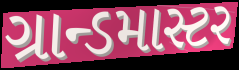
ગ્રાન્ડમાસ્ટર